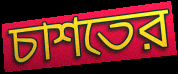
চাশতের